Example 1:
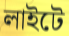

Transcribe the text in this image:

লাইটে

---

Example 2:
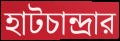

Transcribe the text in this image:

হাটচান্দ্রার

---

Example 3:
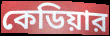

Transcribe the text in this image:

কেডিয়ার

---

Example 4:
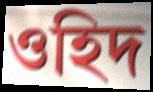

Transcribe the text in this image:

ওহিদ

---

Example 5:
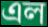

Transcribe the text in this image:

এল